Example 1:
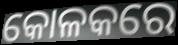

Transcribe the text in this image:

କୋଳକରେ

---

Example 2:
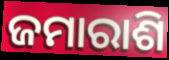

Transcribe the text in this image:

ଜମାରାଶି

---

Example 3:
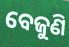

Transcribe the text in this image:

ବେଜୁଣି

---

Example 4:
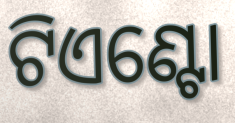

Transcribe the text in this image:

ଟିଏଣ୍ଟୋ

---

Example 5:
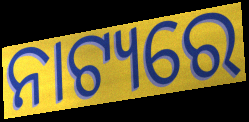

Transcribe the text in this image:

ନାଟ୍ୟରେ